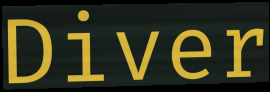
Diver